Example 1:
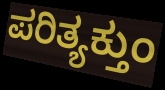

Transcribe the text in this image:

ಪರಿತ್ಯಕ್ತುಂ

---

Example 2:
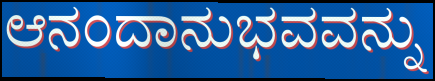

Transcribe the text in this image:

ಆನಂದಾನುಭವವನ್ನು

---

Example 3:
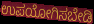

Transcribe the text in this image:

ಉಪಯೋಗಿಸಬೇಡಿ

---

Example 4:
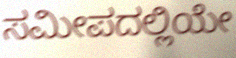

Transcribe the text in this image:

ಸಮೀಪದಲ್ಲಿಯೇ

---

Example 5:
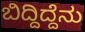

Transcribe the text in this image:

ಬಿದ್ದಿದ್ದೆನು